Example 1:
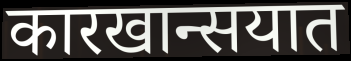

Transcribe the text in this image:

कारखान्सयात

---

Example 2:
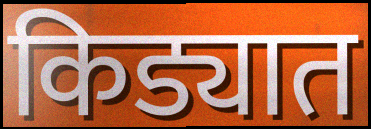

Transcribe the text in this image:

किड्यात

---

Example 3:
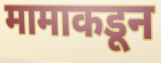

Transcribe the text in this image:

मामाकडून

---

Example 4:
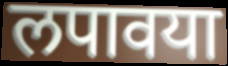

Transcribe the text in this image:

लपावया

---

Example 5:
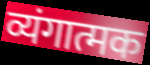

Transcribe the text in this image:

व्यंगात्मक